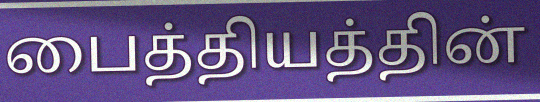
பைத்தியத்தின்